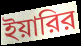
ইয়ারির